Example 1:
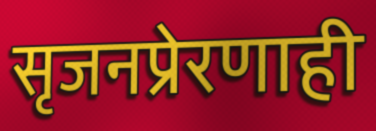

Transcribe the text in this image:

सृजनप्रेरणाही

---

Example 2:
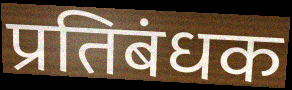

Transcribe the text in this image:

प्रतिबंधक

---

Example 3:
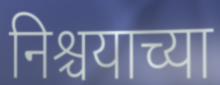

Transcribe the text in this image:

निश्चयाच्या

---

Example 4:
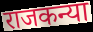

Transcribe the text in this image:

राजकन्या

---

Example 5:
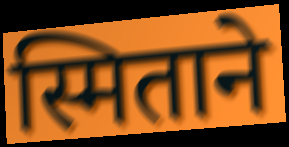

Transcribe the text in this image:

स्मिताने